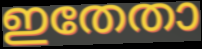
ഇതേതാ